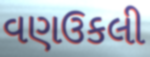
વણઉકલી